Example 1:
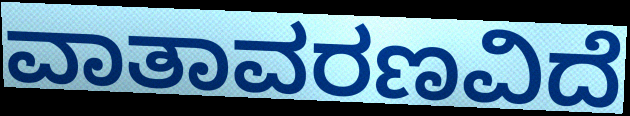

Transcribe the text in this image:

ವಾತಾವರಣವಿದೆ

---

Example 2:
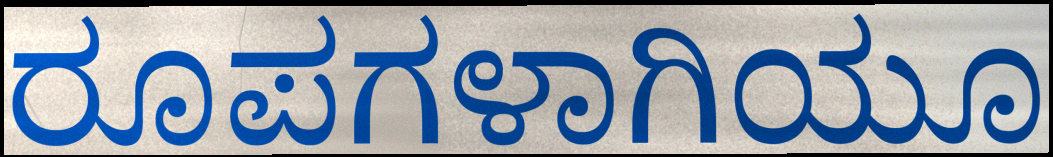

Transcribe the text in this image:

ರೂಪಗಳಾಗಿಯೂ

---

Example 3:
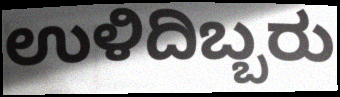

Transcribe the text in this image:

ಉಳಿದಿಬ್ಬರು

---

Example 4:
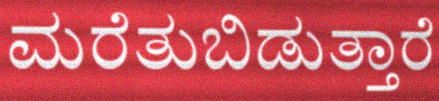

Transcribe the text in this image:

ಮರೆತುಬಿಡುತ್ತಾರೆ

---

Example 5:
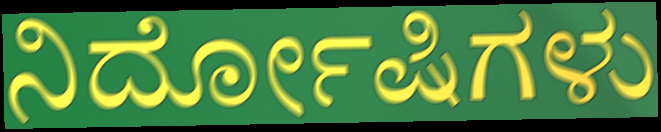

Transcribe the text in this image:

ನಿರ್ದೋಷಿಗಳು